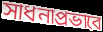
সাধনাপ্রভাবে